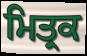
ਮਿਤ੍ਰਕ